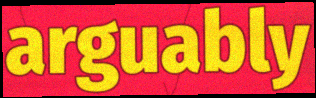
arguably